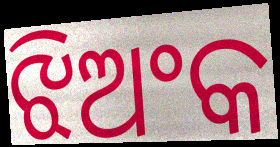
ଝିଅଂକ